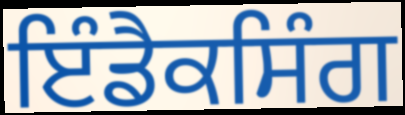
ਇੰਡੈਕਸਿੰਗ